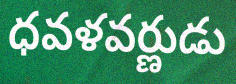
ధవళవర్ణుడు